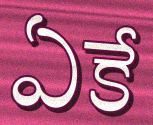
ఏకే